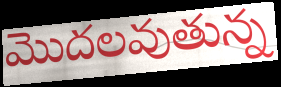
మొదలవుతున్న